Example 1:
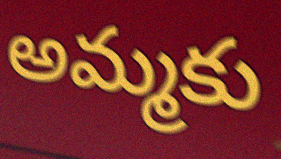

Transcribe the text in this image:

అమ్మకు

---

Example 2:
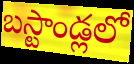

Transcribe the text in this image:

బస్టాండ్లలో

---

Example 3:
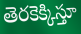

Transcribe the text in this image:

తెరకెక్కిస్తూ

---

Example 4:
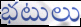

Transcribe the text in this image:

భటులు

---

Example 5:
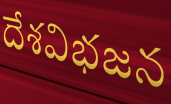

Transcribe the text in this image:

దేశవిభజన